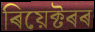
ৰিয়েক্টৰৰ